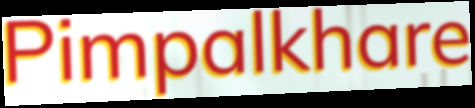
Pimpalkhare